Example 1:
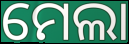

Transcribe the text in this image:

ମେଲା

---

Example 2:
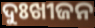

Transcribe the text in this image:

ଦୁଃଖୀଜନ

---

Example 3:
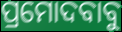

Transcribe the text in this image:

ପ୍ରମୋଦବାବୁ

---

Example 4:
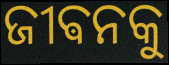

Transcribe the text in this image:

ଜୀଵନକୁ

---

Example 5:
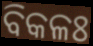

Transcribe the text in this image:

ବିକଳଃ